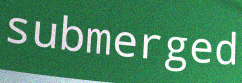
submerged